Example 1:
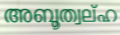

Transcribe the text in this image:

അബൂത്വല്ഹ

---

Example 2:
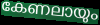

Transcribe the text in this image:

കേണലായും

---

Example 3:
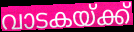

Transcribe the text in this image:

വാടകയ്ക്ക്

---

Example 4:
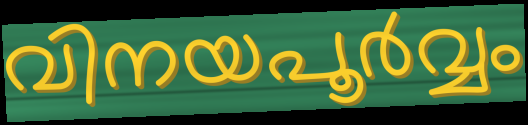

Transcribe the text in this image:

വിനയപൂർവ്വം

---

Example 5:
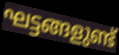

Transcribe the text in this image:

ഘട്ടങ്ങളുണ്ട്